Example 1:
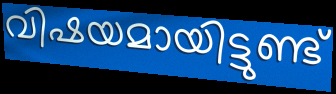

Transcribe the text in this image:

വിഷയമായിട്ടുണ്ട്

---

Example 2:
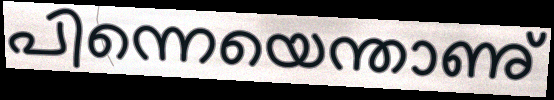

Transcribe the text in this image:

പിന്നെയെന്താണു്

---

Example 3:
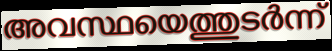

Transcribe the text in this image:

അവസ്ഥയെത്തുടർന്ന്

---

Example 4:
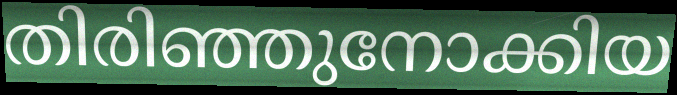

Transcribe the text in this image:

തിരിഞ്ഞുനോക്കിയ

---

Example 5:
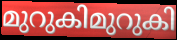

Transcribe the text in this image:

മുറുകിമുറുകി